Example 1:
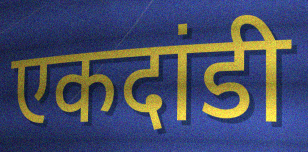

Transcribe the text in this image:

एकदांडी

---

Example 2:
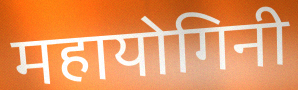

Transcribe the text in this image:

महायोगिनी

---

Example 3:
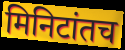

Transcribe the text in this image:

मिनिटांतच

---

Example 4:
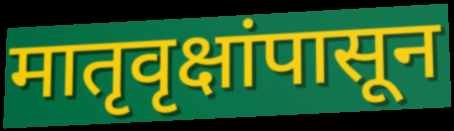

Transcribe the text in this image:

मातृवृक्षांपासून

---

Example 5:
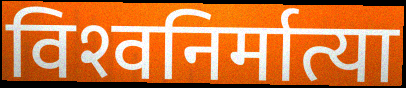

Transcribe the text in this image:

विश्वनिर्मात्या